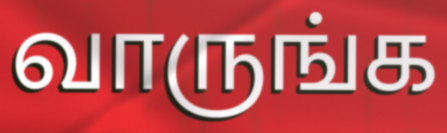
வாருங்க